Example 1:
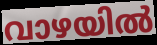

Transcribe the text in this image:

വാഴയിൽ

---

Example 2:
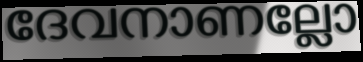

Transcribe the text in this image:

ദേവനാണല്ലോ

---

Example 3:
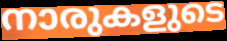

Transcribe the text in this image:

നാരുകളുടെ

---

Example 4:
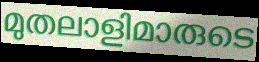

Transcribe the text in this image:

മുതലാളിമാരുടെ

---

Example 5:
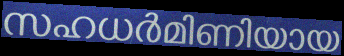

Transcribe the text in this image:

സഹധർമിണിയായ